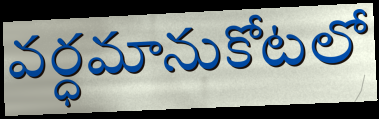
వర్ధమానుకోటలో